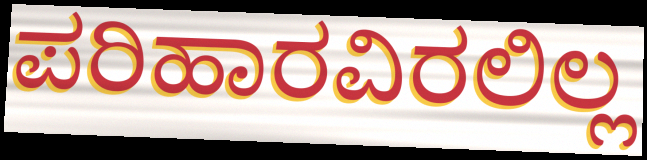
ಪರಿಹಾರವಿರಲಿಲ್ಲ